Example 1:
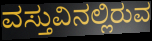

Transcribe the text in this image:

ವಸ್ತುವಿನಲ್ಲಿರುವ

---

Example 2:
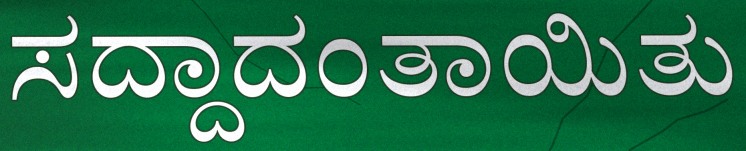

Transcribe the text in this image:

ಸದ್ದಾದಂತಾಯಿತು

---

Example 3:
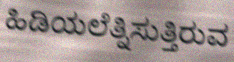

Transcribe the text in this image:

ಹಿಡಿಯಲೆತ್ನಿಸುತ್ತಿರುವ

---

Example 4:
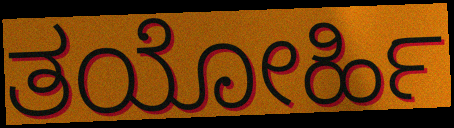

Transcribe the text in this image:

ತಯೋರ್ಹಿ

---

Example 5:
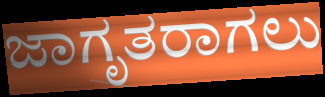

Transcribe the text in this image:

ಜಾಗೃತರಾಗಲು